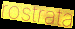
rostrata